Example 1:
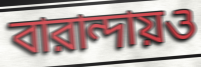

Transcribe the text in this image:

বারান্দায়ও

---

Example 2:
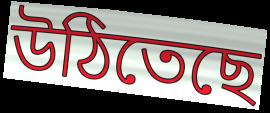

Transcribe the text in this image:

উঠিতেছে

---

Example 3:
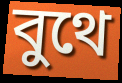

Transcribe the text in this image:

বুথে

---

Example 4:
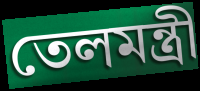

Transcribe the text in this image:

তেলমন্ত্রী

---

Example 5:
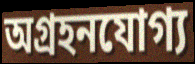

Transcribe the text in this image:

অগ্রহনযোগ্য